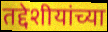
तद्देशीयांच्या